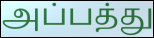
அப்பத்து